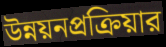
উন্নয়নপ্রক্রিয়ার